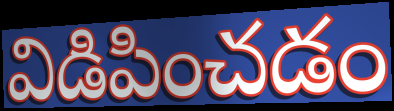
విడిపించడం